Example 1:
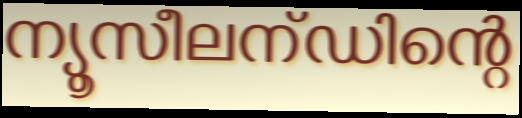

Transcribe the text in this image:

ന്യൂസീലന്ഡിന്റെ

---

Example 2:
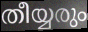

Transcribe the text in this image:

തീയ്യരും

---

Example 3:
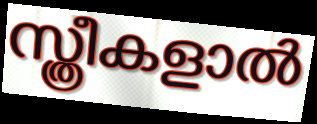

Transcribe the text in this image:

സ്ത്രീകളാൽ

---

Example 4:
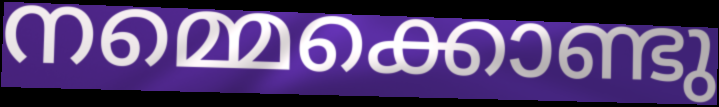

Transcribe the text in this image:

നമ്മെക്കൊണ്ടു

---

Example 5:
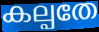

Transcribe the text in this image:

കല്പതേ